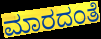
ಮಾರದಂತೆ